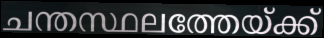
ചന്തസ്ഥലത്തേയ്ക്ക്